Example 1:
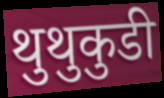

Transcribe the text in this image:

थुथुकुडी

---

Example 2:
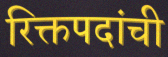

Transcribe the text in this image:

रिक्तपदांची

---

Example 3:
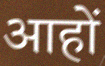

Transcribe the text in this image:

आहों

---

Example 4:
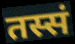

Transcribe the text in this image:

तस्सं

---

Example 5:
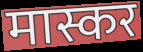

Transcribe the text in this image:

मास्कर